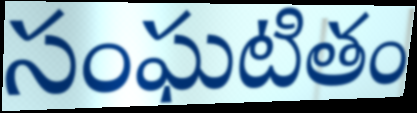
సంఘటితం